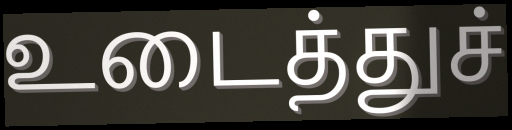
உடைத்துச்